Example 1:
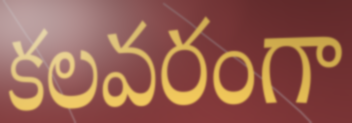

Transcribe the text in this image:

కలవరంగా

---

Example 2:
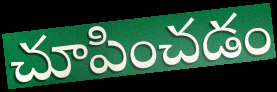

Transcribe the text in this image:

చూపించడం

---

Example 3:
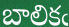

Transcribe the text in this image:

బాలికఁ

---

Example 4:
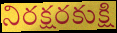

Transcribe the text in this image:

నిరక్షరకుక్షి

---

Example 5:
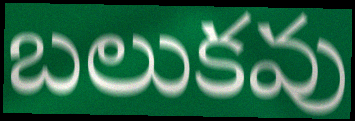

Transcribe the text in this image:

బలుకవు